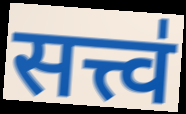
सत्त्व॑